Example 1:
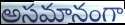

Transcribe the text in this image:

అసమానంగా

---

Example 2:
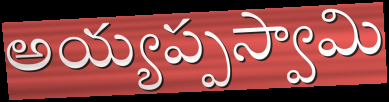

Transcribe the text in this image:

అయ్యప్పస్వామి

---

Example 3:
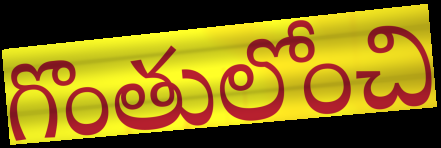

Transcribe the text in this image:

గొంతులోంచి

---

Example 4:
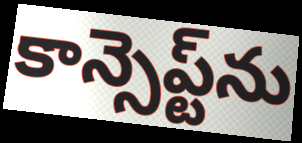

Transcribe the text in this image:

కాన్సెప్ట్‌ను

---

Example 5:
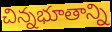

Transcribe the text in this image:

చిన్నభూతాన్ని